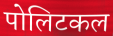
पोलिटकल